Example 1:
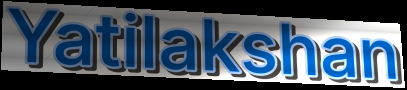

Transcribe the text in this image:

Yatilakshan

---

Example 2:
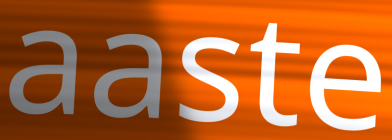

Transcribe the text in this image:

aaste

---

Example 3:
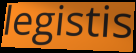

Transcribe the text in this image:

legistis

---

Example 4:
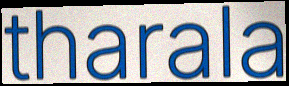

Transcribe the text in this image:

tharala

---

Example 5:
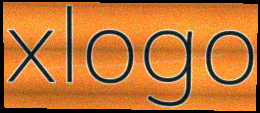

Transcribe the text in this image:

xlogo